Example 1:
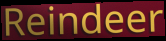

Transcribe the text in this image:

Reindeer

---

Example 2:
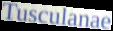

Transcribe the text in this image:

Tusculanae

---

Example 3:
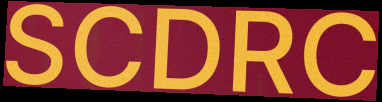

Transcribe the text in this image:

SCDRC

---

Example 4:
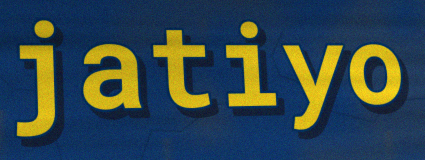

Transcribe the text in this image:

jatiyo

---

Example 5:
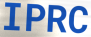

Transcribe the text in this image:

IPRC